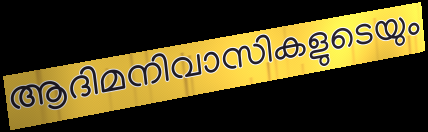
ആദിമനിവാസികളുടെയും